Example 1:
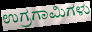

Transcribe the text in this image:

ಉಗ್ರಗಾಮಿಗಳು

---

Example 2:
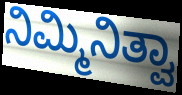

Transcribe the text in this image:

ನಿಮ್ಮಿನಿತ್ವಾ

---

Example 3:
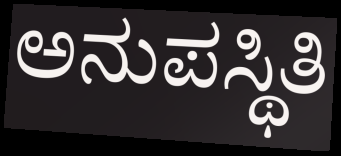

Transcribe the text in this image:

ಅನುಪಸ್ಥಿತಿ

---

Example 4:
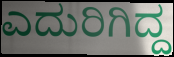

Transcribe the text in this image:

ಎದುರಿಗಿದ್ದ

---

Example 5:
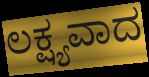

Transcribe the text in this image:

ಲಕ್ಷ್ಯವಾದ